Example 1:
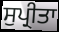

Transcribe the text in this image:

ਸੁਪ੍ਰੀਤਾ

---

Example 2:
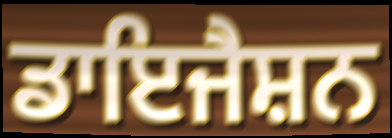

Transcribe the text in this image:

ਡਾਇਜੈਸ਼ਨ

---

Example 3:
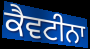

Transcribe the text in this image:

ਕੈਵਟੀਨਾ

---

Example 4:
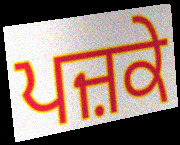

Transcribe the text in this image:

ਪਜ਼ਕੇ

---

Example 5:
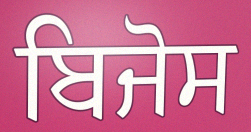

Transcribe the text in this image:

ਬਿਜੋਸ